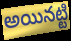
అయినట్టి